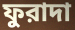
ফুরাদা